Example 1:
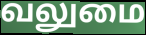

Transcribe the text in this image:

வலுமை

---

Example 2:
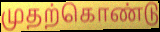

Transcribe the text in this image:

முதற்கொண்டு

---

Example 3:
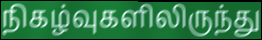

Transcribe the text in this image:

நிகழ்வுகளிலிருந்து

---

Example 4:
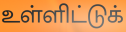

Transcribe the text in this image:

உள்ளிட்டுக்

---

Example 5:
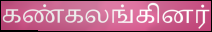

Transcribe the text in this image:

கண்கலங்கினர்